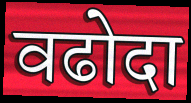
वढोदा